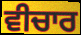
ਵੀਚਾਰ